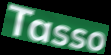
Tasso